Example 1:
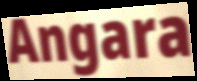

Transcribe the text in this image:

Angara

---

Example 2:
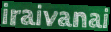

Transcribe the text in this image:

iraivanai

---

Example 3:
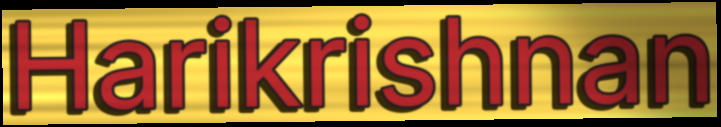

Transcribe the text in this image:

Harikrishnan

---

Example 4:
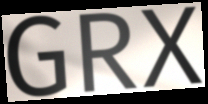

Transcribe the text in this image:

GRX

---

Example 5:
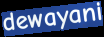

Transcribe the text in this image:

dewayani